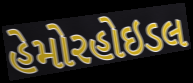
હેમોરહોઇડલ